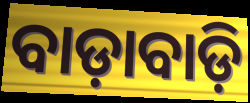
ବାଡ଼ାବାଡ଼ି